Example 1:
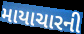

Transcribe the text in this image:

માયાચારની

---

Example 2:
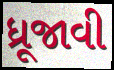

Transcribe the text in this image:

ધ્રૂજાવી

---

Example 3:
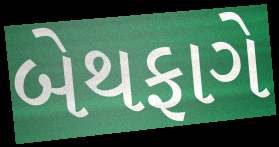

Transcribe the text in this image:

બેથફાગે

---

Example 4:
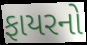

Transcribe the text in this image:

ફાયરનો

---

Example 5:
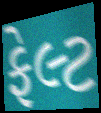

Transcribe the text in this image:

ફેલ્ટ